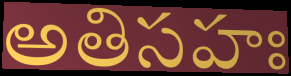
అతిసహః